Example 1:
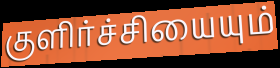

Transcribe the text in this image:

குளிர்ச்சியையும்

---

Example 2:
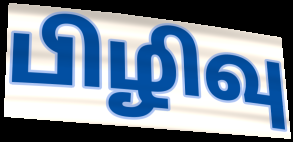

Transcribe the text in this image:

பிழிவு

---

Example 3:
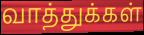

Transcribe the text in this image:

வாத்துக்கள்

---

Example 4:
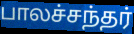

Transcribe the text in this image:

பாலச்சந்தர்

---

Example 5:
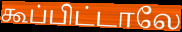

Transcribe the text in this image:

கூப்பிட்டாலே